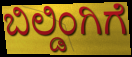
ಬಿಲ್ಡಿಂಗಿಗೆ